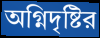
অগ্নিদৃষ্টির